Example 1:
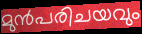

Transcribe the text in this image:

മുൻപരിചയവും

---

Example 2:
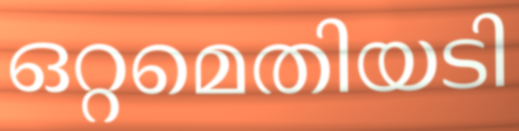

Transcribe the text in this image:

ഒറ്റമെതിയടി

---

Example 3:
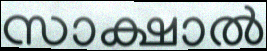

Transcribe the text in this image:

സാക്ഷാൽ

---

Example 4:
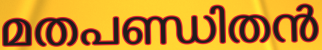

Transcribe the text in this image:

മതപണ്ഡിതൻ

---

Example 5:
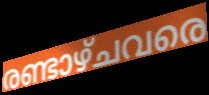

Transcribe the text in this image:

രണ്ടാഴ്ചവരെ